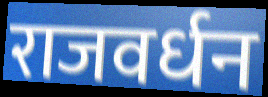
राजवर्धन